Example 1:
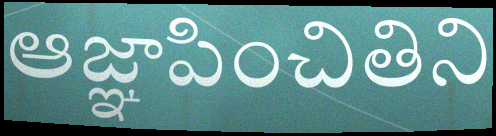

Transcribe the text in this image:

ఆజ్ఞాపించితిని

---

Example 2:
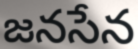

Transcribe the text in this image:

జనసేన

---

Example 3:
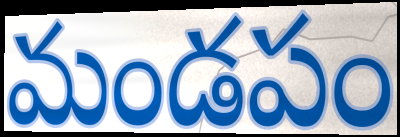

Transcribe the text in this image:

మండపం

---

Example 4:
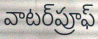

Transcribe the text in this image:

వాటర్‌ప్రూఫ్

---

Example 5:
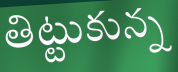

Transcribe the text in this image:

తిట్టుకున్న